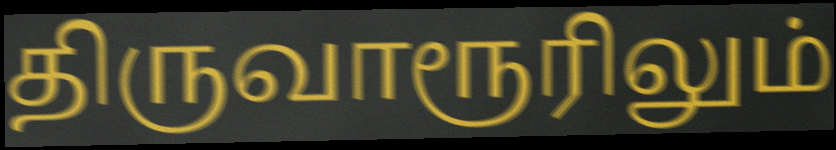
திருவாரூரிலும்